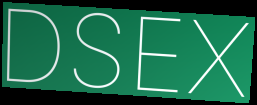
DSEX